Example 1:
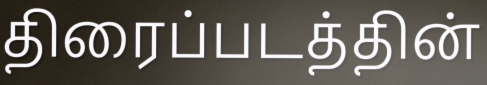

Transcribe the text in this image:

திரைப்படத்தின்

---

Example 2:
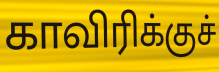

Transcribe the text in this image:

காவிரிக்குச்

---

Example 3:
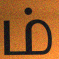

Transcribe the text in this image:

ம்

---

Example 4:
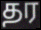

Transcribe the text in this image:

தர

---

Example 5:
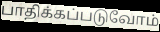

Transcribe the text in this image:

பாதிக்கப்படுவோம்